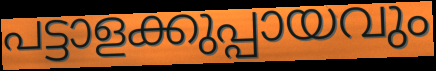
പട്ടാളക്കുപ്പായവും